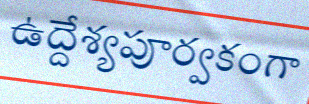
ఉద్దేశ్యపూర్వకంగా